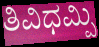
ತಿವಿಧಮ್ಪಿ